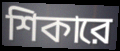
শিকারে